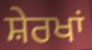
ਸ਼ੇਰਖਾਂ